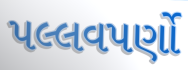
પલ્લવપર્ણો